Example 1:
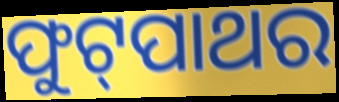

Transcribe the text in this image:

ଫୁଟ୍‌ପାଥର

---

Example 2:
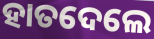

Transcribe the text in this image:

ହାତଦେଲେ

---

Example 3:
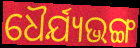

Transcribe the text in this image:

ଧୈର୍ଯ୍ୟଭଙ୍ଗ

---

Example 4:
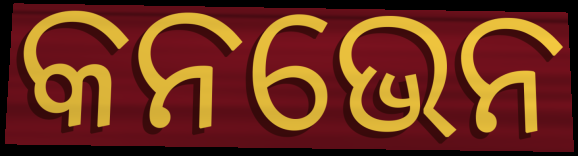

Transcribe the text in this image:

କନଭେନ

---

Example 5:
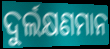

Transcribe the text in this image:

ଦୁର୍ଲକ୍ଷଣମାନ